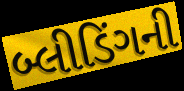
બ્લીડિંગની